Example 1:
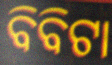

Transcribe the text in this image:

ବିବିଟା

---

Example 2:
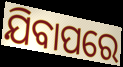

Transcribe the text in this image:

ଯିବାପରେ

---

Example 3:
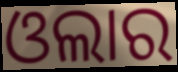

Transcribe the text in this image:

ଓଲାର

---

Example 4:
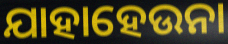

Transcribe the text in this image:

ଯାହାହେଉନା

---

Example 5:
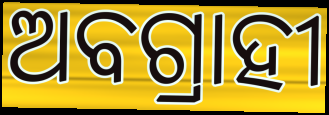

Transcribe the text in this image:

ଅବଗ୍ରାହୀ